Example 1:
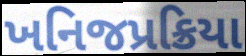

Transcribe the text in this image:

ખનિજપ્રક્રિયા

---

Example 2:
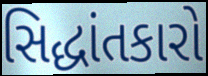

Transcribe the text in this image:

સિદ્ધાંતકારો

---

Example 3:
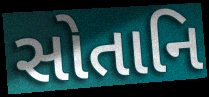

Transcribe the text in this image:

સોતાનિ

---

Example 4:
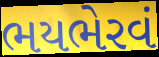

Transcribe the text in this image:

ભયભેરવં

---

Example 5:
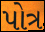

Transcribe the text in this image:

પોત્ર